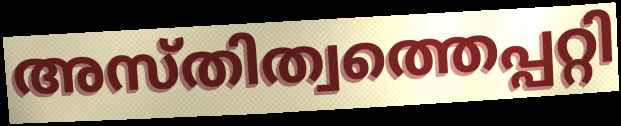
അസ്തിത്വത്തെപ്പറ്റി